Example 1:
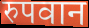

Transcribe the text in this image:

रुपवान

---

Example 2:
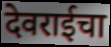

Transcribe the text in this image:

देवराईचा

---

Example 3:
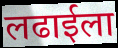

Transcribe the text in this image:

लढाईला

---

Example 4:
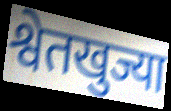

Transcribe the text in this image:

श्वेतखुज्या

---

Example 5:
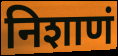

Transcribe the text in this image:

निशाणं